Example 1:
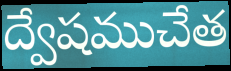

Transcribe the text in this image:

ద్వేషముచేత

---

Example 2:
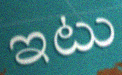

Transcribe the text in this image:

ఇటు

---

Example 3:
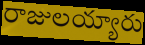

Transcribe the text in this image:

రాజులయ్యారు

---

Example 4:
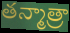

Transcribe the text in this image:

తన్మాత్రా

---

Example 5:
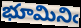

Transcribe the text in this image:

భూమినిఁ